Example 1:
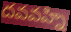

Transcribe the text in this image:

దవవహ్ని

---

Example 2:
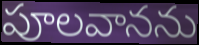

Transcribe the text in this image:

పూలవానను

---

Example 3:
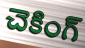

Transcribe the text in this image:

చెకింగ్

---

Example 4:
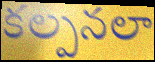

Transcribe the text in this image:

కల్పనలా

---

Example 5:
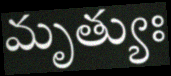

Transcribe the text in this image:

మృత్యుః